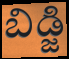
బిడ్జి